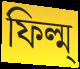
ফিল্ম্